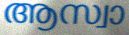
ആസ്വാ